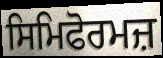
ਸਿਮਿਫੋਰਮਜ਼